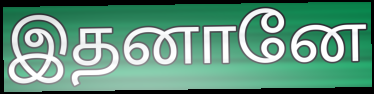
இதனானே